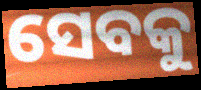
ସେବକୁ